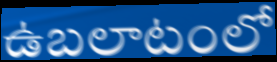
ఉబలాటంలో